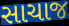
સાચાજ